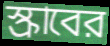
স্ক্রাবের